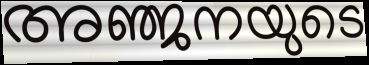
അഞ്ജനയുടെ